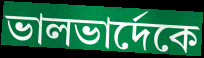
ভালভার্দেকে